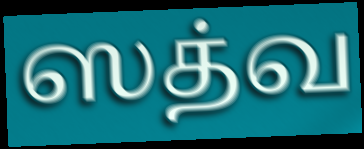
ஸத்வ